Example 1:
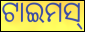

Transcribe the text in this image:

ଟାଇମସ୍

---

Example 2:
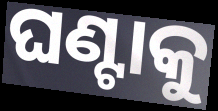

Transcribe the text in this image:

ଘଣ୍ଟାକୁ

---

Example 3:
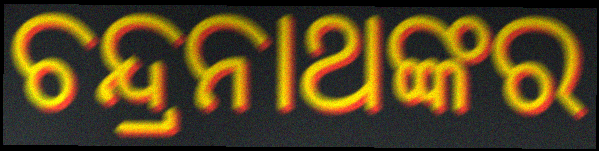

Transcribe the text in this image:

ଚନ୍ଦ୍ରନାଥଙ୍କର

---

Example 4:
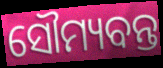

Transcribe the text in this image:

ସୌମ୍ୟବନ୍ତ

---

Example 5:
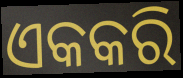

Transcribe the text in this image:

ଏକକରି